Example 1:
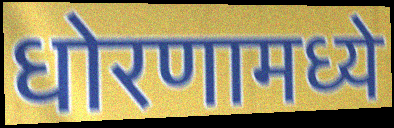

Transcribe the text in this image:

धोरणामध्ये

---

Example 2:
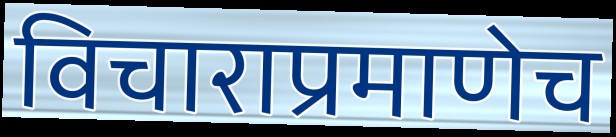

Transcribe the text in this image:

विचाराप्रमाणेच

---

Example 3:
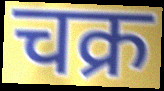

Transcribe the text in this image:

चक्र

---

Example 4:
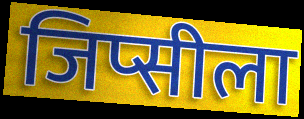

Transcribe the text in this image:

जिप्सीला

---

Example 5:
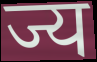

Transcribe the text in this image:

ज्य